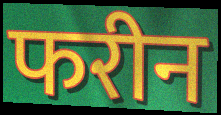
फरीन